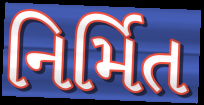
નિર્મિત